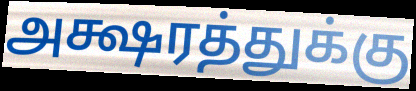
அக்ஷரத்துக்கு